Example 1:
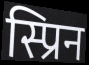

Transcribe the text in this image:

स्प्रिन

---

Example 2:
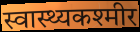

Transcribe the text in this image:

स्वास्थ्यकश्‍मीर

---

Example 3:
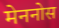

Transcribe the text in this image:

मेननोस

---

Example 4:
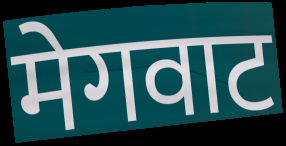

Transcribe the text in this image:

मेगवाट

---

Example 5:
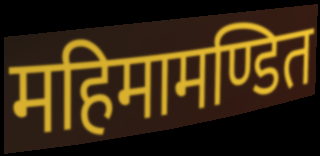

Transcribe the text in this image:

महिमामण्डित